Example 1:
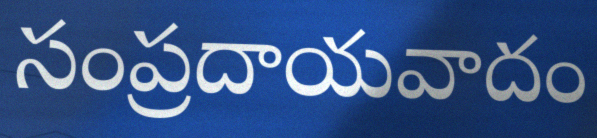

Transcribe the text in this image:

సంప్రదాయవాదం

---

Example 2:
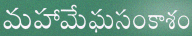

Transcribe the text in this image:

మహామేఘసంకాశం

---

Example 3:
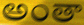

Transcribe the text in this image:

అంతా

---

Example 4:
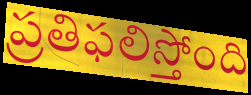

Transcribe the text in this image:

ప్రతిఫలిస్తోంది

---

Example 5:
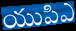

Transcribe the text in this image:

యుపిఎ